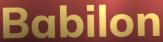
Babilon